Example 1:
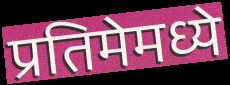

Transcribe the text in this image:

प्रतिमेमध्ये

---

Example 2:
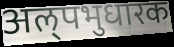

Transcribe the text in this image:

अल्पभुधारक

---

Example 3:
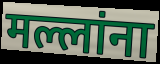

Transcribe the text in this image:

मल्लांना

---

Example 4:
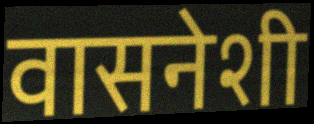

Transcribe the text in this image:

वासनेशी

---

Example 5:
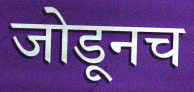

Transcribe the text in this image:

जोडूनच